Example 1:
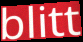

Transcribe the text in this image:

blitt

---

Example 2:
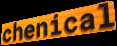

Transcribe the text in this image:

chenical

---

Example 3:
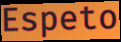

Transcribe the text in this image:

Espeto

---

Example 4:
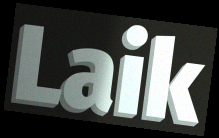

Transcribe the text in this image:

Laik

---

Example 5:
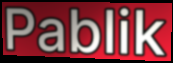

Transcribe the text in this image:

Pablik